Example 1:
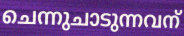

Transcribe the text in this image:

ചെന്നുചാടുന്നവന്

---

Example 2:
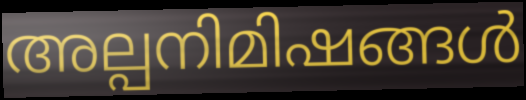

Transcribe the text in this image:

അല്പനിമിഷങ്ങൾ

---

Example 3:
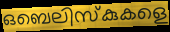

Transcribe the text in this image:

ഒബെലിസ്കുകളെ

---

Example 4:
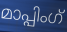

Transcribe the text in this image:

മാപ്പിംഗ്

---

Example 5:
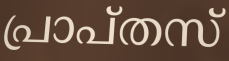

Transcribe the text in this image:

പ്രാപ്തസ്